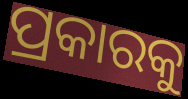
ପ୍ରକାରକୁ